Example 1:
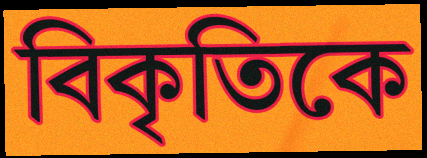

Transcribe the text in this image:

বিকৃতিকে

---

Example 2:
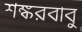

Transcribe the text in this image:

শঙ্করবাবু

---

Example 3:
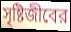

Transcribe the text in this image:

সৃষ্টিজীবের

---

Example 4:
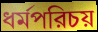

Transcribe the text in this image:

ধর্মপরিচয়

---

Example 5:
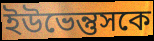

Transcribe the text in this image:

ইউভেন্তুসকে